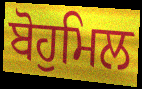
ਬੋਹੁਮਿਲ